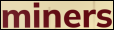
miners